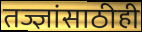
तज्ज्ञांसाठीही